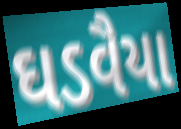
ઘડવૈયા